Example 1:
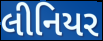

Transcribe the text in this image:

લીનિયર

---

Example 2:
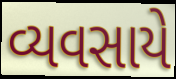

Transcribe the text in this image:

વ્યવસાયે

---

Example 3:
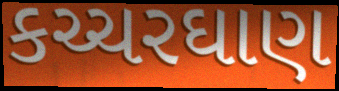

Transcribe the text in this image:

કચ્ચરઘાણ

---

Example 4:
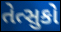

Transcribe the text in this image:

તેત્સુકો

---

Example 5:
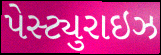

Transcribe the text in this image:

પેસ્ટ્યુરાઇઝ